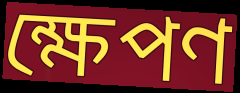
ক্ষেপণ